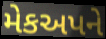
મેકઅપને